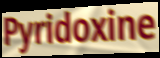
Pyridoxine